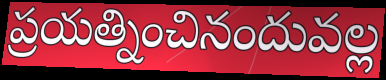
ప్రయత్నించినందువల్ల